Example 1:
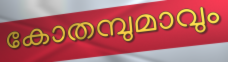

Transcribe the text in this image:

കോതമ്പുമാവും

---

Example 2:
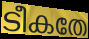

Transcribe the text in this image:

ടീകതേ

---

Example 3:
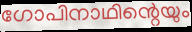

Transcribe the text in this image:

ഗോപിനാഥിന്റെയും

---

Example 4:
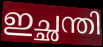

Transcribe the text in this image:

ഇച്ഛന്തി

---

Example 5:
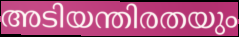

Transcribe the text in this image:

അടിയന്തിരതയും